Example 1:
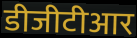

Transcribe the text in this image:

डीजीटीआर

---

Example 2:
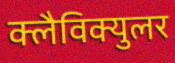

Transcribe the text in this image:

क्लैविक्युलर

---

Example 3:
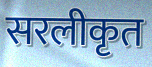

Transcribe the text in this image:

सरलीकृत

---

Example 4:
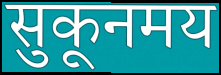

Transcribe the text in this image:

सुकूनमय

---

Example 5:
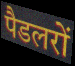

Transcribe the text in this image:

पैडलरों